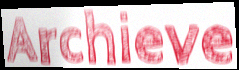
Archieve